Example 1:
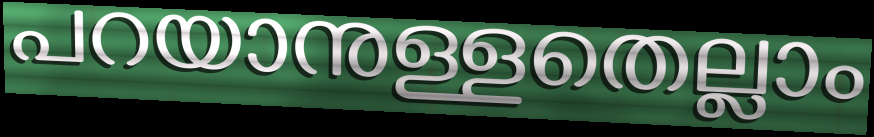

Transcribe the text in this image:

പറയാനുള്ളതെല്ലാം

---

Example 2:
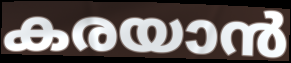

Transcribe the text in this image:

കരയാൻ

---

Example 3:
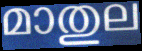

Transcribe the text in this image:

മാതുല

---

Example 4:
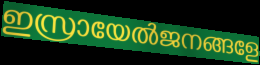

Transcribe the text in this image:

ഇസ്രായേൽജനങ്ങളേ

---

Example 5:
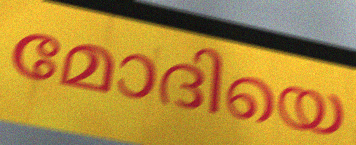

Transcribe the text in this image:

മോദിയെ